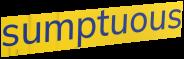
sumptuous